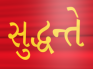
સુદ્ધન્તે